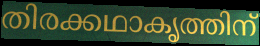
തിരക്കഥാകൃത്തിന്